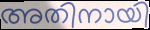
അതിനായി